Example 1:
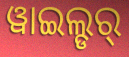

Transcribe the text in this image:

ୱାଇଲ୍ଡର୍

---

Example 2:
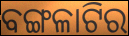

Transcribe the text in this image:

ବଙ୍ଗଳାଟିର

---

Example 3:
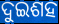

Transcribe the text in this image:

ଦୁଇଶହ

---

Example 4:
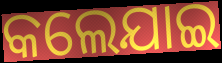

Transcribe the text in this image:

କଲେଯାଇ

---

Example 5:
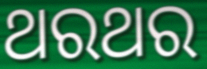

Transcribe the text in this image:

ଥରଥର